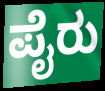
ಪೈರು